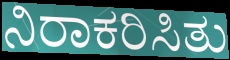
ನಿರಾಕರಿಸಿತು